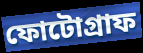
ফোটোগ্রাফ